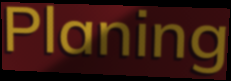
Planing